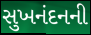
સુખનંદનની